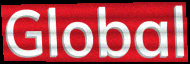
Global